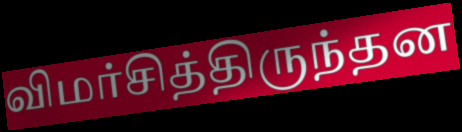
விமர்சித்திருந்தன